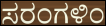
ಸರಂಗಳಿಂ